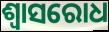
ଶ୍ୱାସରୋଧ